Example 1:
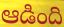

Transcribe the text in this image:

ఆడింది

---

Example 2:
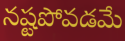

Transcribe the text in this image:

నష్టపోవడమే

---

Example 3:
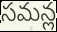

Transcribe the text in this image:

సమన్ల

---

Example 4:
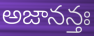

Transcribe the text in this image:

అజానన్తః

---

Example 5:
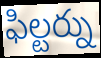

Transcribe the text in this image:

ఫిల్టర్ను